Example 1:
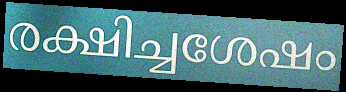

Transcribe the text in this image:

രക്ഷിച്ചശേഷം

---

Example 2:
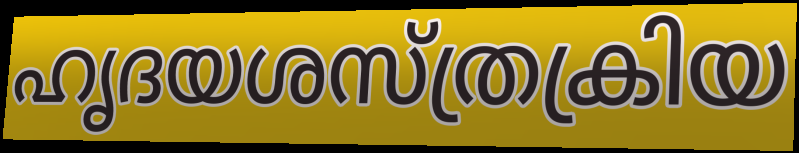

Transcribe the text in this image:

ഹൃദയശസ്ത്രക്രിയ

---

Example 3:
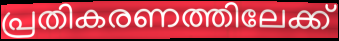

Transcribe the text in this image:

പ്രതികരണത്തിലേക്ക്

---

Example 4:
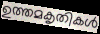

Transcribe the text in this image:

ഉത്തമകൃതികൾ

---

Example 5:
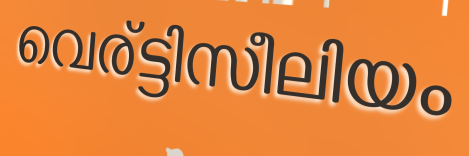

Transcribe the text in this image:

വെര്ട്ടിസീലിയം